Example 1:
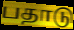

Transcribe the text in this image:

பதாடு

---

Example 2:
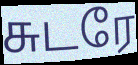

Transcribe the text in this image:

சுடரே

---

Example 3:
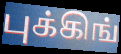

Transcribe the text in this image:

புக்கிங்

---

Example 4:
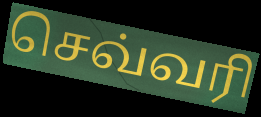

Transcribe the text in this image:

செவ்வரி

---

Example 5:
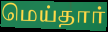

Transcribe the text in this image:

மெய்தார்